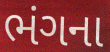
ભંગના